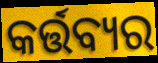
କର୍ତ୍ତବ୍ୟର